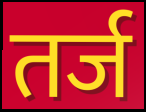
तर्ज